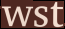
wst